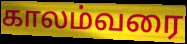
காலம்வரை